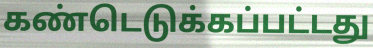
கண்டெடுக்கப்பட்டது